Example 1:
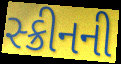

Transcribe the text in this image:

સ્ક્રીનની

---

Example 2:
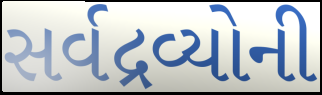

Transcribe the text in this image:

સર્વદ્રવ્યોની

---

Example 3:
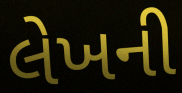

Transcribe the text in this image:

લેખની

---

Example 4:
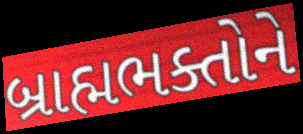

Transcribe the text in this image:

બ્રાહ્મભક્તોને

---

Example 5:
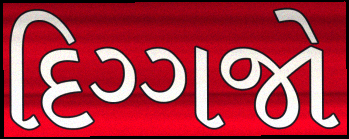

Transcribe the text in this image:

દિગ્ગજો